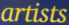
artists